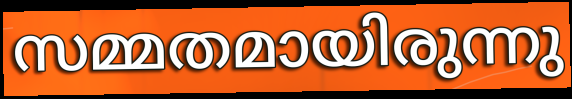
സമ്മതമായിരുന്നു